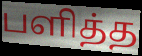
பளித்த